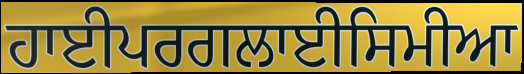
ਹਾਈਪਰਗਲਾਈਸਿਮੀਆ